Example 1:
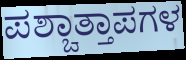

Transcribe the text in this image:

ಪಶ್ಚಾತ್ತಾಪಗಳ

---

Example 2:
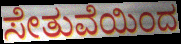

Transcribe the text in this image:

ಸೇತುವೆಯಿಂದ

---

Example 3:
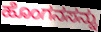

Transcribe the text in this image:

ಹೊಂಗನಸನ್ನು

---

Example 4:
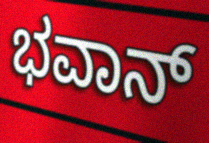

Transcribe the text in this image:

ಭವಾನ್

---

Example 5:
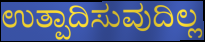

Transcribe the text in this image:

ಉತ್ಪಾದಿಸುವುದಿಲ್ಲ